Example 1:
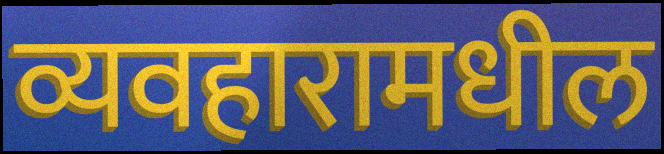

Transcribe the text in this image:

व्यवहारामधील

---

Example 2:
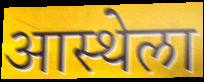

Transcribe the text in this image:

आस्थेला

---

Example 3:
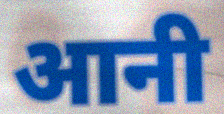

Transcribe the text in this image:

आनी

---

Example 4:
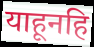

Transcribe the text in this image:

याहूनहि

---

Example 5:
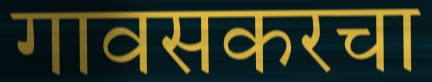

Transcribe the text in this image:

गावसकरचा